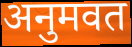
अनुमवत